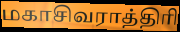
மகாசிவராத்திரி